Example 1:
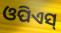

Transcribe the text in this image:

ଓପିଏସ୍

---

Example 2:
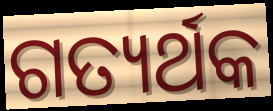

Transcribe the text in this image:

ଗତ୍ୟର୍ଥକ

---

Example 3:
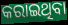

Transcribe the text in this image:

କରାଇଥିବା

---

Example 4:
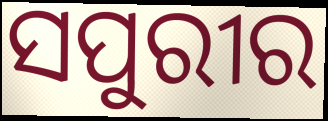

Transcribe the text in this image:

ସପୁରୀର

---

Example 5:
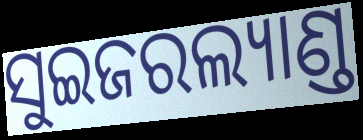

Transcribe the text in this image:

ସୁଇଜରଲ୍ୟାଣ୍ଡ